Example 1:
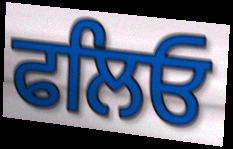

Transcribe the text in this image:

ਫਲਿਓ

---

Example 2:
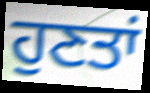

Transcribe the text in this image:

ਹੁਣਤਾਂ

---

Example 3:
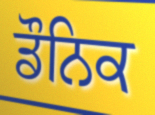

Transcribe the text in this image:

ਡੌਨਿਕ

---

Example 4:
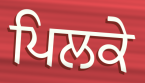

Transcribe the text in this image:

ਪਿਲਕੇ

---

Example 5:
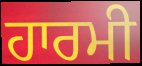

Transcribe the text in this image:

ਹਾਰਮੀ